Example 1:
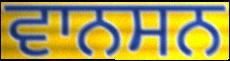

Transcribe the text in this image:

ਵਾਨਸਨ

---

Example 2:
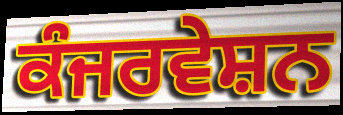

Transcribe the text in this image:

ਕੰਜਰਵੇਸ਼ਨ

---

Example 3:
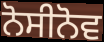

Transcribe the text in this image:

ਨੋਸੀਨੋਵ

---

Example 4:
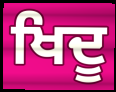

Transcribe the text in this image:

ਖਿਦੂ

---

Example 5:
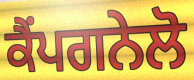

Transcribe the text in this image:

ਕੈਂਪਗਨੇਲੋ